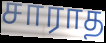
சாராத